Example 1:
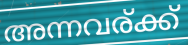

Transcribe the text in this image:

അന്നവര്ക്ക്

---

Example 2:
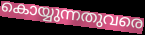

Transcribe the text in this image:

കൊയ്യുന്നതുവരെ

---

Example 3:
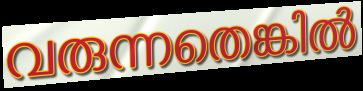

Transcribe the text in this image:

വരുന്നതെങ്കിൽ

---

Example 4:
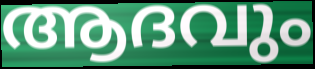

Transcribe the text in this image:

ആദവും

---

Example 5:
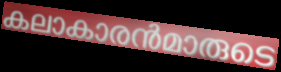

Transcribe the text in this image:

കലാകാരൻമാരുടെ